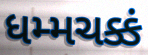
ધમ્મચક્કં